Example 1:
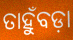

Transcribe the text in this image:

ତାହୁଁବଡ଼ା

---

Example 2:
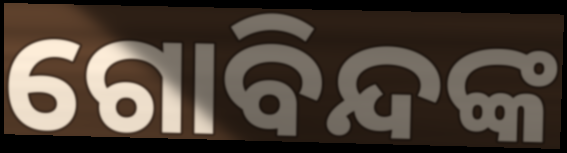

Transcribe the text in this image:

ଗୋବିନ୍ଦଙ୍କ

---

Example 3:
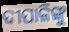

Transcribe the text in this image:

ଦୀପାଳିଙ୍କୁ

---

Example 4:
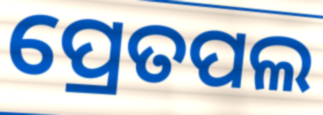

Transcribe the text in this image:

ପ୍ରେତପଲ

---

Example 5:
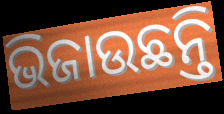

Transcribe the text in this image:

ଭିଜାଉଛନ୍ତି